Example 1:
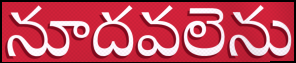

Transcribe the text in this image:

నూదవలెను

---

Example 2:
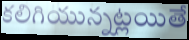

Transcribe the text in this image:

కలిగియున్నట్లయితే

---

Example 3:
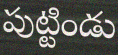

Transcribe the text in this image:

పుట్టిండు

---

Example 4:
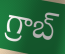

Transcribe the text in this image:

గ్రాబ్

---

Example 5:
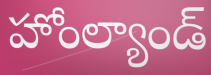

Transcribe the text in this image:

హోంల్యాండ్